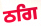
ਠਗਿ